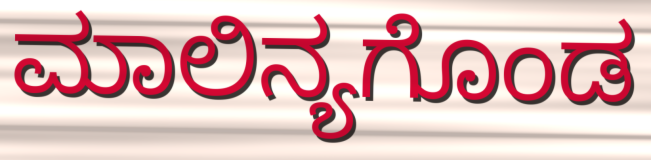
ಮಾಲಿನ್ಯಗೊಂಡ